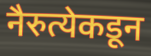
नैरुत्येकडून